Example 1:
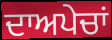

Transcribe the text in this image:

ਦਾਅਪੇਚਾਂ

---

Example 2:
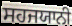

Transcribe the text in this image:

ਸਹਜਯਾਨੀ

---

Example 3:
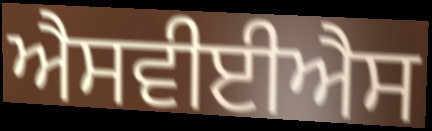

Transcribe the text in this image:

ਐਸਵੀਈਐਸ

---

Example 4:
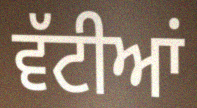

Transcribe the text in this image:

ਵੱਟੀਆਂ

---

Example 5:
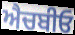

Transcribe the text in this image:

ਐਚਬੀਓ